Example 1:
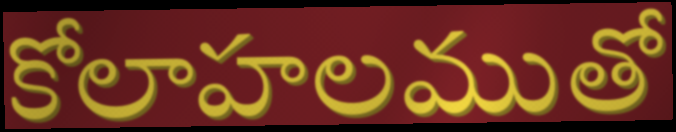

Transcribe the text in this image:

కోలాహలముతో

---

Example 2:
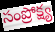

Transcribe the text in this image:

సంప్రోక్ష్య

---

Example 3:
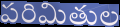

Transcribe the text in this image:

పరిమితుల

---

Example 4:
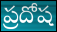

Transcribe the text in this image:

ప్రదోష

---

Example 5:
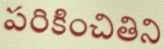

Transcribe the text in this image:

పరికించితిని